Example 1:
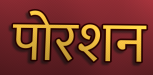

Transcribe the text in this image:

पोरशन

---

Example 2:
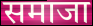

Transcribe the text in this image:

समाजा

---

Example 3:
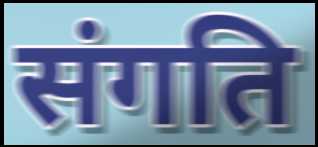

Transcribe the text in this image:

संगति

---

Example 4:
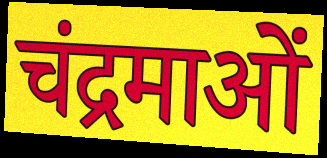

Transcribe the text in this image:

चंद्रमाओं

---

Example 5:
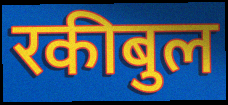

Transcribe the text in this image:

रकीबुल